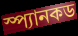
স্প্যানকড